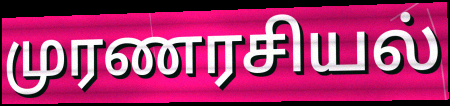
முரணரசியல்